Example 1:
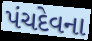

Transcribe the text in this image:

પંચદેવના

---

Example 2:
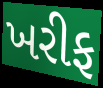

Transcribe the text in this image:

ખરીફ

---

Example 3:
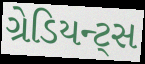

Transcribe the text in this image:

ગ્રેડિયન્ટ્સ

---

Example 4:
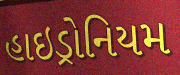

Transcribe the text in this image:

હાઇડ્રોનિયમ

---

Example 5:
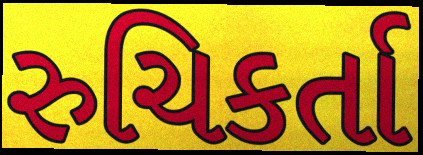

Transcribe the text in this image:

રુચિકર્તા